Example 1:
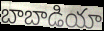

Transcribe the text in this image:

బాబాడియా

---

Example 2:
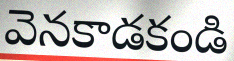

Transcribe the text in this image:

వెనకాడకండి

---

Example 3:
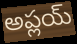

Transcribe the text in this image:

అప్లయ్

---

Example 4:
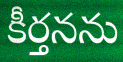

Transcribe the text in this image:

కీర్తనను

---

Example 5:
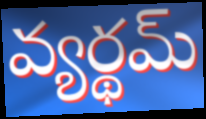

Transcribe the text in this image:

వ్యర్థమ్